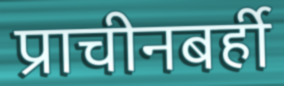
प्राचीनबर्ही